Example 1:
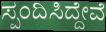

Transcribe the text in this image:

ಸ್ಪಂದಿಸಿದ್ದೇವೆ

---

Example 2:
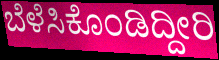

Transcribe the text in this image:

ಬೆಳೆಸಿಕೊಂಡಿದ್ದೀರಿ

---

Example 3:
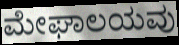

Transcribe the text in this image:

ಮೇಘಾಲಯವು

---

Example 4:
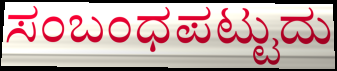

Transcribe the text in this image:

ಸಂಬಂಧಪಟ್ಟುದು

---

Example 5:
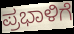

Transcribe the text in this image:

ಪ್ರಭಾಳಿಗೆ